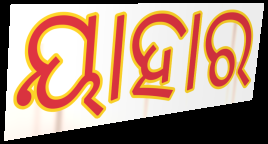
ୟାହାର